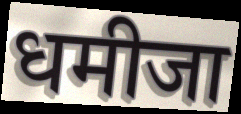
धमीजा